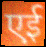
एई